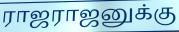
ராஜராஜனுக்கு